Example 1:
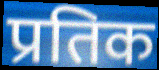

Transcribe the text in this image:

प्रतिक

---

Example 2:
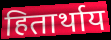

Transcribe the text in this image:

हितार्थाय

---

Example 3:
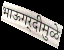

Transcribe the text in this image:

भाऊगर्दीमुळे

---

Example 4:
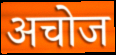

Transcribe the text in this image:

अचोज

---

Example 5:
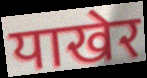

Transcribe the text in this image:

याखेर